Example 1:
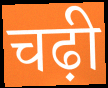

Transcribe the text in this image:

चढ़ी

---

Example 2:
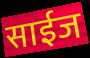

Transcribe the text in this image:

साईज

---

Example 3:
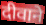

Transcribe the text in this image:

दीवाने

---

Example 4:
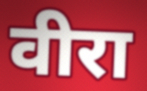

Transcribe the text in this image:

वीरा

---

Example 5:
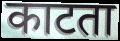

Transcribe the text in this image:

काटता